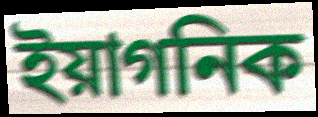
ইয়াগনিক